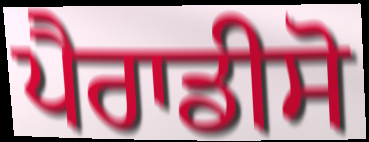
ਪੈਰਾਡੀਸੋ